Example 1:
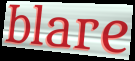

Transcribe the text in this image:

blare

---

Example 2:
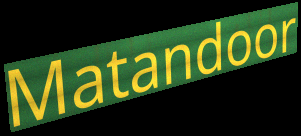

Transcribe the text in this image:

Matandoor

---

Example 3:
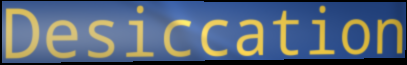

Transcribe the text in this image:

Desiccation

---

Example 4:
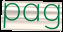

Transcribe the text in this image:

pag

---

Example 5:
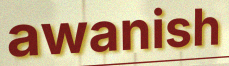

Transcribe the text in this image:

awanish